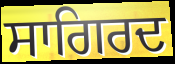
ਸਾਗਿਰਦ